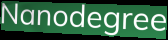
Nanodegree